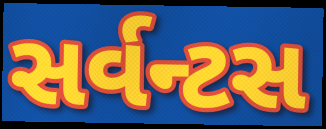
સર્વન્ટસ